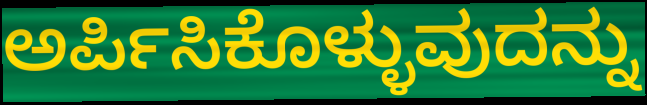
ಅರ್ಪಿಸಿಕೊಳ್ಳುವುದನ್ನು